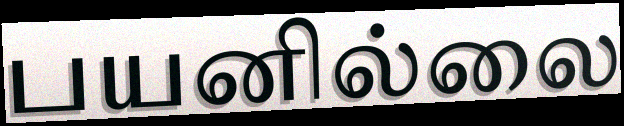
பயனில்லை